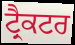
ਟ੍ਰੈਕਟਰ